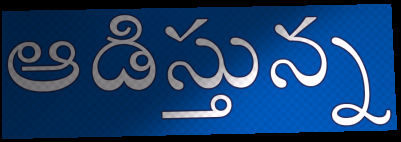
ఆడిస్తున్న